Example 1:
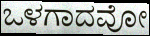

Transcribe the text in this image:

ಒಳಗಾದವೋ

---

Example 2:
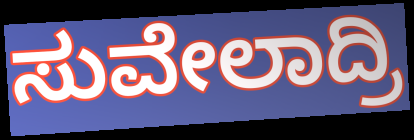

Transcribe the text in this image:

ಸುವೇಲಾದ್ರಿ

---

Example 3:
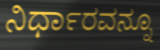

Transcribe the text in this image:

ನಿರ್ಧಾರವನ್ನೂ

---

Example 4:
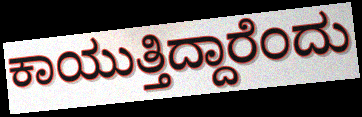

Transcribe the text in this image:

ಕಾಯುತ್ತಿದ್ದಾರೆಂದು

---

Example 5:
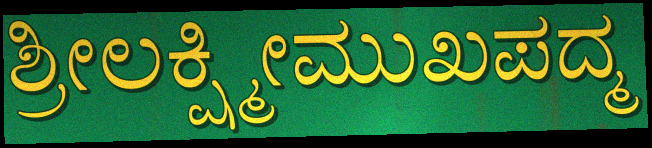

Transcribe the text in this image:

ಶ್ರೀಲಕ್ಷ್ಮೀಮುಖಪದ್ಮ